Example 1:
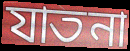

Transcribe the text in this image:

যাতনা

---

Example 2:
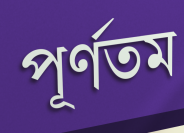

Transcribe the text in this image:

পূর্ণতম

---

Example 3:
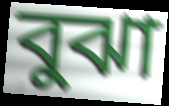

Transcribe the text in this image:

বুঝা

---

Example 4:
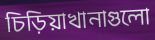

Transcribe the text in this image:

চিড়িয়াখানাগুলো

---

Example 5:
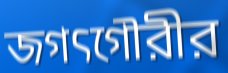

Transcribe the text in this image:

জগৎগৌরীর